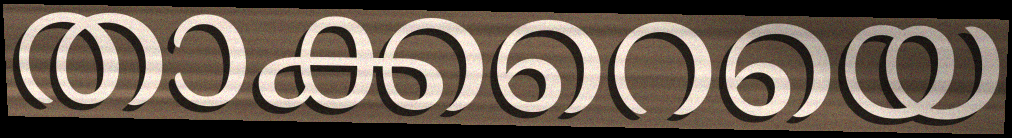
താക്കറെയെ